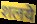
शलये